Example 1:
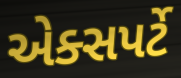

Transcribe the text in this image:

એક્સપર્ટે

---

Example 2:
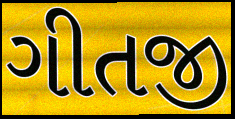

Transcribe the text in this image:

ગીતજી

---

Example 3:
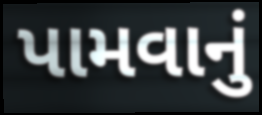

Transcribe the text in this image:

પામવાનું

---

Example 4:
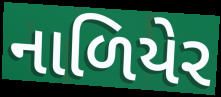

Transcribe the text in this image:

નાળિયેર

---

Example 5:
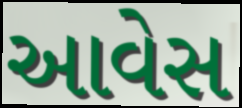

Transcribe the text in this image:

આવેસ